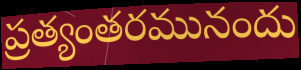
ప్రత్యంతరమునందు